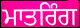
ਮਾਤਰਿੰਗ